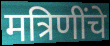
मत्रिणींचे